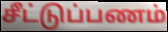
சீட்டுப்பணம்